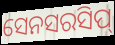
ସେନସରସିପ୍